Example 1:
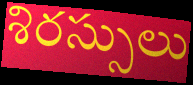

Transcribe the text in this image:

శిరస్సులు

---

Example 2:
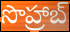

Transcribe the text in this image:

సొహ్రాబ్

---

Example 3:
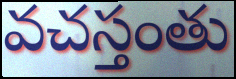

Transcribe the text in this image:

వచస్తంతు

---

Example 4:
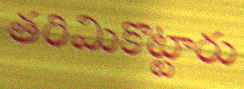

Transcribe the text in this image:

తరిమికొట్టారు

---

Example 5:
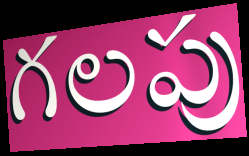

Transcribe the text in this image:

గలపు